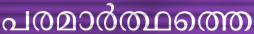
പരമാർത്ഥത്തെ